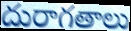
దురాగతాలు